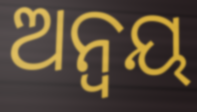
ଅନ୍ଵୟ